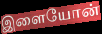
இளையோன்